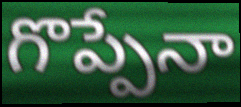
గొప్పేనా